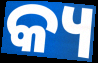
କ୍ୟ